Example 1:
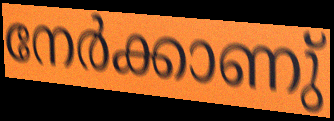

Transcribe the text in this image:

നേർക്കാണു്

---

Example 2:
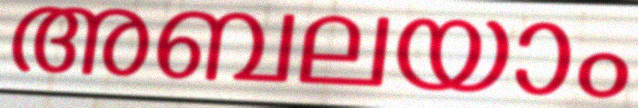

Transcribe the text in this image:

അബലയാം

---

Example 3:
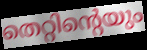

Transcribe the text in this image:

തെറ്റിന്റെയും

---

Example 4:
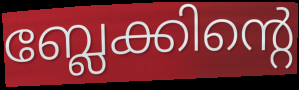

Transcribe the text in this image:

ബ്ലേക്കിന്റെ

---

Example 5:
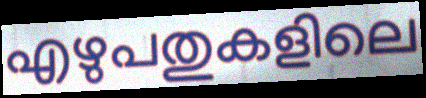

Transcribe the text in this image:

എഴുപതുകളിലെ